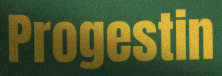
Progestin